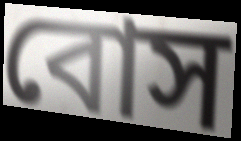
বোস